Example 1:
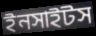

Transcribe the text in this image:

ইনসাইটস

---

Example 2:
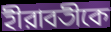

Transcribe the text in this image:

হীরাবতীকে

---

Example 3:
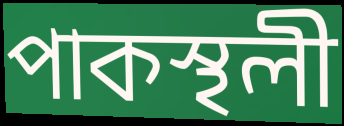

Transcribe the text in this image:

পাকস্থলী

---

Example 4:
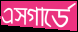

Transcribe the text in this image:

এসগার্ডে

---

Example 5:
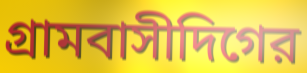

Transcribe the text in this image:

গ্রামবাসীদিগের